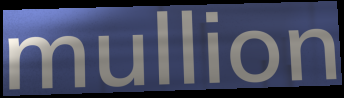
mullion